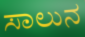
ಸಾಲುನ